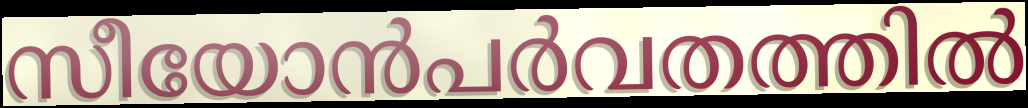
സീയോൻപർവതത്തിൽ